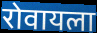
रोवायला